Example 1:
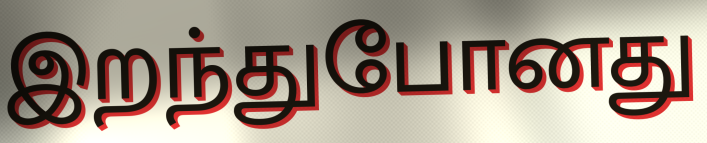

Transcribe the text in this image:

இறந்துபோனது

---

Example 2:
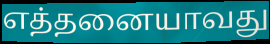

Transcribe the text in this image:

எத்தனையாவது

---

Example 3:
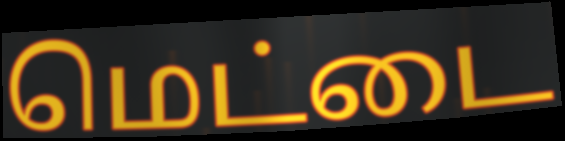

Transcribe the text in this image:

மெட்டை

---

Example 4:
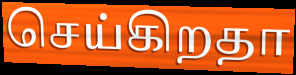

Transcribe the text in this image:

செய்கிறதா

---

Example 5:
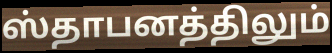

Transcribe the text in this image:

ஸ்தாபனத்திலும்